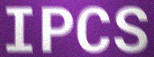
IPCS